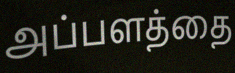
அப்பளத்தை